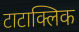
टाटाक्लिक